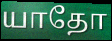
யாதோ